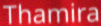
Thamira